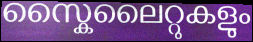
സ്കൈലൈറ്റുകളും